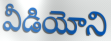
వీడియోని